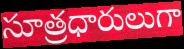
సూత్రధారులుగా